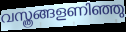
വസ്ത്രങ്ങളണിഞ്ഞു